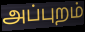
அப்புறம்